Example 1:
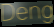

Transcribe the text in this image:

Deng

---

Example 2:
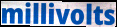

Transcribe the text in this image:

millivolts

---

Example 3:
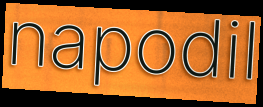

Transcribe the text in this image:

napodil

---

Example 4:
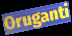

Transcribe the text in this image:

Oruganti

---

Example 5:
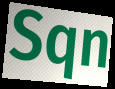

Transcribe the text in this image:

Sqn